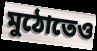
মুঠোতেও